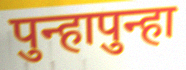
पुन्हापुन्हा